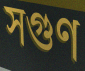
সগুণ